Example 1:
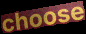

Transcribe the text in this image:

choose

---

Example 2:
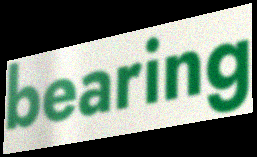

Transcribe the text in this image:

bearing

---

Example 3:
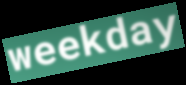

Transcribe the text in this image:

weekday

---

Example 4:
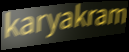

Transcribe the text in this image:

karyakram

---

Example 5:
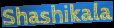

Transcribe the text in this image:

Shashikala